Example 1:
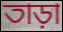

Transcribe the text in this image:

তাড়া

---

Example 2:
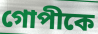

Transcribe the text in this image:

গোপীকে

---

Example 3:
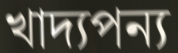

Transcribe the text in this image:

খাদ্যপন্য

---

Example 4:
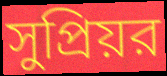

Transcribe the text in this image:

সুপ্রিয়র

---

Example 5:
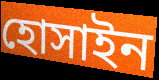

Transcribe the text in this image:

হোসাইন